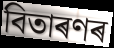
বিতাৰণৰ